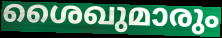
ശൈഖുമാരും